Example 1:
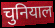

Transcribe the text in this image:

चुनियाल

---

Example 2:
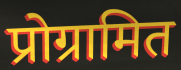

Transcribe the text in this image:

प्रोग्रामित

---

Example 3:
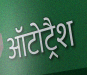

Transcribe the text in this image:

ऑटोट्रैश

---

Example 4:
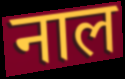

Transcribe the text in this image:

नाल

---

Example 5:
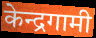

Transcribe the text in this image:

केन्द्रगामी